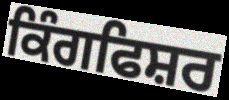
ਕਿੰਗਫਿਸ਼ਰ